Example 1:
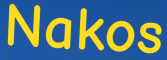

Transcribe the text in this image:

Nakos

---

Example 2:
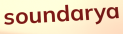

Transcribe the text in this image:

soundarya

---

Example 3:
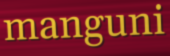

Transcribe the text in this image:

manguni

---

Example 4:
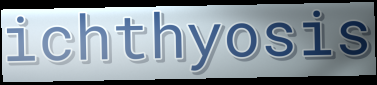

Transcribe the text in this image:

ichthyosis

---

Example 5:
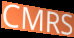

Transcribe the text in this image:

CMRS